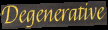
Degenerative